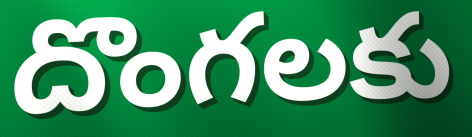
దొంగలకు